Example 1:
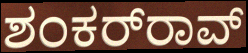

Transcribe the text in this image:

ಶಂಕರ್‌ರಾವ್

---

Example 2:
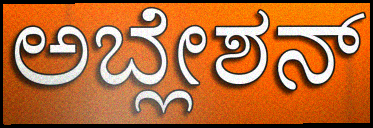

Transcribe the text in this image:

ಅಬ್ಲೇಶನ್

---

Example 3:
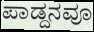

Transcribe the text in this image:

ಪಾಡ್ದನವೂ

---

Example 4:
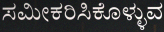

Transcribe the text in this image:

ಸಮೀಕರಿಸಿಕೊಳ್ಳುವ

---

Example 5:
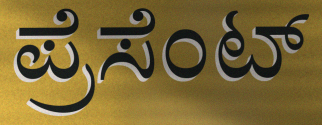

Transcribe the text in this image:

ಪ್ರೆಸೆಂಟ್